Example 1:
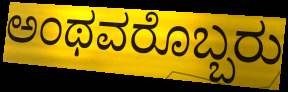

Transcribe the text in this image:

ಅಂಥವರೊಬ್ಬರು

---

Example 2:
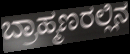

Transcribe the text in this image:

ಬ್ರಾಹ್ಮಣರಲ್ಲಿನ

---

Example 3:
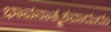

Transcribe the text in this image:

ಭಾವನಾತ್ಮಕವಾದುದು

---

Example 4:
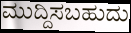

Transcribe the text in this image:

ಮುದ್ದಿಸಬಹುದು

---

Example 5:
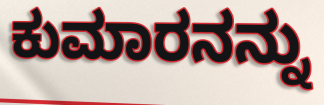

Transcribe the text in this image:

ಕುಮಾರನನ್ನು